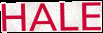
HALE